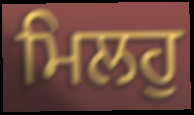
ਮਿਲਹੁ